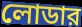
লোডার